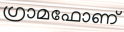
ഗ്രാമഫോണ്